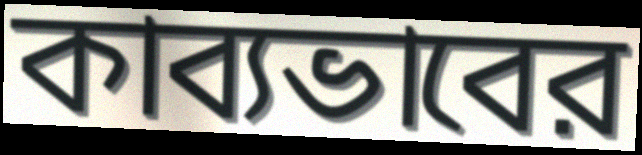
কাব্যভাবের